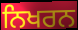
ਨਿਖਰਨ